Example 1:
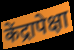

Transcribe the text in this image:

केंद्रापेक्षा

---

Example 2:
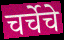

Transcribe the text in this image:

चर्चेचे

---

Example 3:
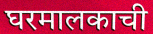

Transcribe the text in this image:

घरमालकाची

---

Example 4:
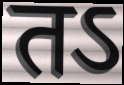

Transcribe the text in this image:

तऽ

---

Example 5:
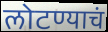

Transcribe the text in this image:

लोटण्याचं